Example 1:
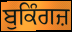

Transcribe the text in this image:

ਬੁਕਿੰਗਜ਼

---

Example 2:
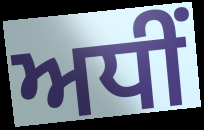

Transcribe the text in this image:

ਅਧੀਂ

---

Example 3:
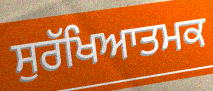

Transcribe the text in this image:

ਸੁਰੱਖਿਆਤਮਕ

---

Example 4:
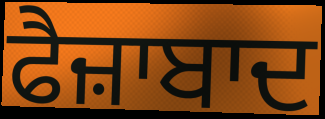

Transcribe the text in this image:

ਫੈਜ਼ਾਬਾਦ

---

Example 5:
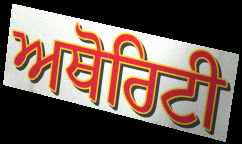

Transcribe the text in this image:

ਅਥੋਰਿਟੀ